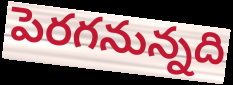
పెరగనున్నది